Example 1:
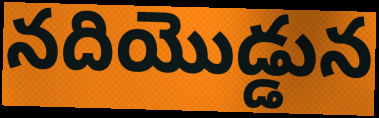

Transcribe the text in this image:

నదియొడ్డున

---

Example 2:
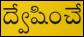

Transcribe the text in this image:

ద్వేషించే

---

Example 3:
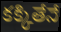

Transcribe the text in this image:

కక్కితేనే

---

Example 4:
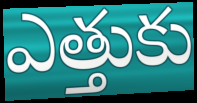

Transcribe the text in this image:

ఎత్తుకు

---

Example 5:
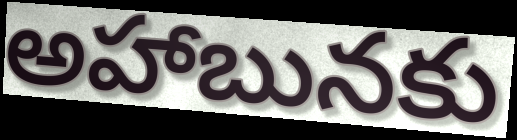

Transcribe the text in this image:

అహాబునకు